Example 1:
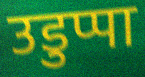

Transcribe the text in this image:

उडुप्पा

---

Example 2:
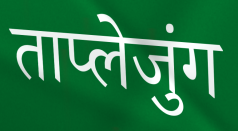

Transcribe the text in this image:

ताप्लेजुंग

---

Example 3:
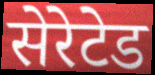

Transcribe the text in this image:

सेरेटेड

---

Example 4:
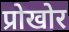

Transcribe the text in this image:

प्रोखोर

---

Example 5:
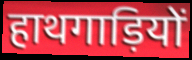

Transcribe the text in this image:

हाथगाड़ियों